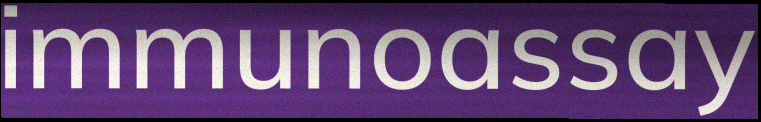
immunoassay